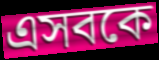
এসবকে